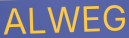
ALWEG